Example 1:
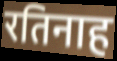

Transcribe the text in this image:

रतिनाह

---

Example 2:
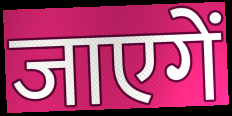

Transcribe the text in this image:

जाएगें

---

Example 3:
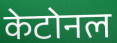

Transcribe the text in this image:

केटोनल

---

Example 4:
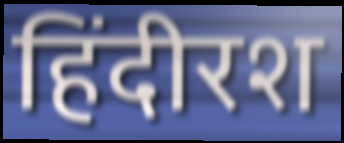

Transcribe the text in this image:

हिंदीरश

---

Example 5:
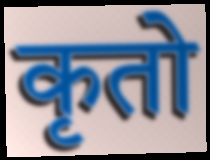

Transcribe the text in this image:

कृतो